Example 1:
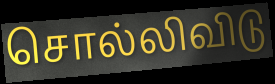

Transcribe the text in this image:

சொல்லிவிடு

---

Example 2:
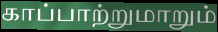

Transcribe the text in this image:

காப்பாற்றுமாறும்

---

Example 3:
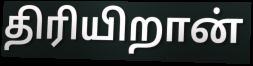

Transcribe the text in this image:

திரியிறான்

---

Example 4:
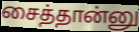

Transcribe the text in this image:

சைத்தான்னு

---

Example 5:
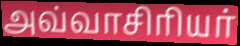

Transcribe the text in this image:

அவ்வாசிரியர்